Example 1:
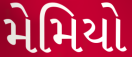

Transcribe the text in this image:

મેમિયો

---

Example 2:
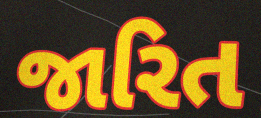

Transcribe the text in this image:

જારિત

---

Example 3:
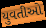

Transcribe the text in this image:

યુવતીઓ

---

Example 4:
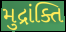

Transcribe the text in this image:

મુદ્રાંક્તિ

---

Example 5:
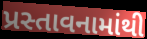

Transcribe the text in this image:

પ્રસ્તાવનામાંથી